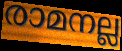
രാമനല്ല